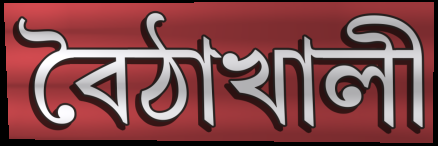
বৈঠাখালী